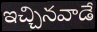
ఇచ్చినవాడే